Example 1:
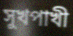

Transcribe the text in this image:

সুখপাখী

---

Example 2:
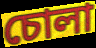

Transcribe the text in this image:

চোলা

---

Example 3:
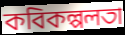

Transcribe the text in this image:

কবিকল্পলতা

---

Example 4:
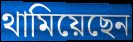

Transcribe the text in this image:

থামিয়েছেন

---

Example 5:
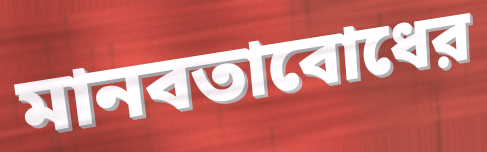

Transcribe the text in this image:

মানবতাবোধের